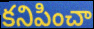
కనిపించా